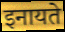
इनायते